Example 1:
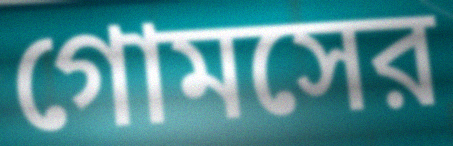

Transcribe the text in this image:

গোমসের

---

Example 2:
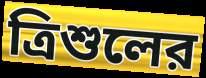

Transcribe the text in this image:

ত্রিশুলের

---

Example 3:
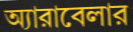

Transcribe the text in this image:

অ্যারাবেলার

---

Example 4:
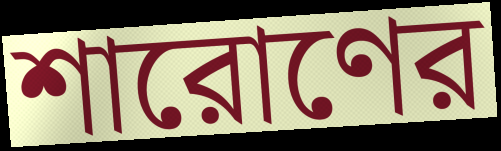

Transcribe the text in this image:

শারোণের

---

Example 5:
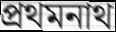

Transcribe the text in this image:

প্রথমনাথ